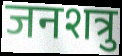
जनशत्रु